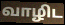
வாழிட